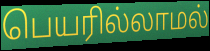
பெயரில்லாமல்